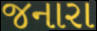
જનારા